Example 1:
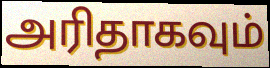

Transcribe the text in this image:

அரிதாகவும்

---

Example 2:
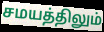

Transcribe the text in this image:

சமயத்திலும்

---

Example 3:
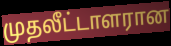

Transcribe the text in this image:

முதலீட்டாளரான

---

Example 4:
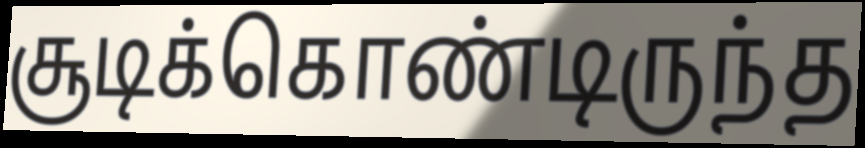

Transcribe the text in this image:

சூடிக்கொண்டிருந்த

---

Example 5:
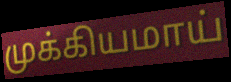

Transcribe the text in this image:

முக்கியமாய்